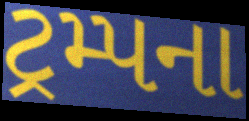
ટ્રમ્પના